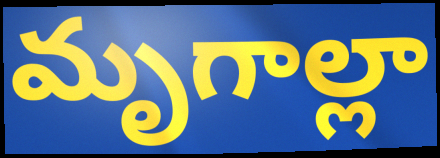
మృగాల్లా